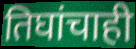
तिघांचाही